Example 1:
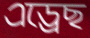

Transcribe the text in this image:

এড্ৰেছ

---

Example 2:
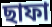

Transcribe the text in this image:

ছাফা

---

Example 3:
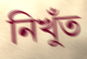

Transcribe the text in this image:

নিখুঁত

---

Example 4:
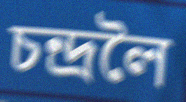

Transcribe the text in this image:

চন্দ্ৰলৈ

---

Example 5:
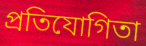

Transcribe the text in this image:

প্ৰতিযোগিতা